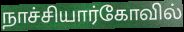
நாச்சியார்கோவில்